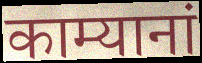
काम्यानां